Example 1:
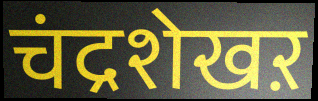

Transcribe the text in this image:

चंद्रशेखऱ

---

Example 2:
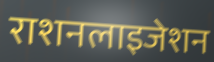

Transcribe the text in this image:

राशनलाइजेशन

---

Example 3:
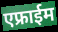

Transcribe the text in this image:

एफ्राईम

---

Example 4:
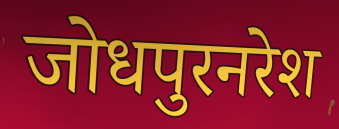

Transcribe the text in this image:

जोधपुरनरेश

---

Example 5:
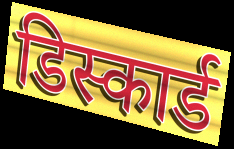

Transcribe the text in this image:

डिस्कार्ड